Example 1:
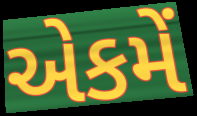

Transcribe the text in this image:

એકમેં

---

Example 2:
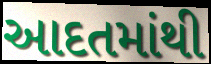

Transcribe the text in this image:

આદતમાંથી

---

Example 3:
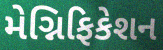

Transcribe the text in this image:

મેગ્નિફિકેશન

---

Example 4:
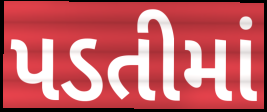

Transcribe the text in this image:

પડતીમાં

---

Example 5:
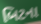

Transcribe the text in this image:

બિટના